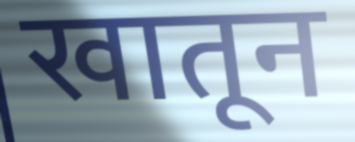
खातून